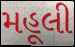
મહૂલી